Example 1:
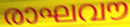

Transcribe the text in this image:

രാഘവൗ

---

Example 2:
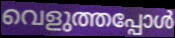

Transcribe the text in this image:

വെളുത്തപ്പോൾ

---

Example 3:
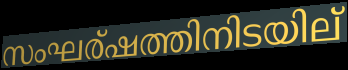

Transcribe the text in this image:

സംഘര്ഷത്തിനിടയില്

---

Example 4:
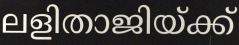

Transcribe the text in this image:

ലളിതാജിയ്ക്ക്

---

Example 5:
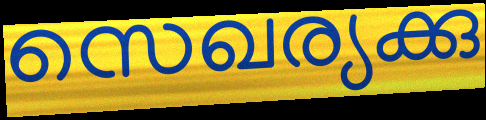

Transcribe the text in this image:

സെഖര്യക്കു